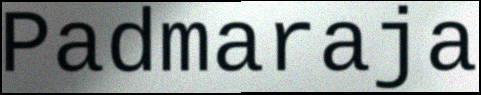
Padmaraja